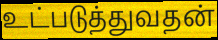
உட்படுத்துவதன்